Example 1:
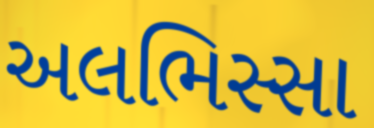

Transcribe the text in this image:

અલભિસ્સા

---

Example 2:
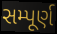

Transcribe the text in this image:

સમ્પૂર્ણ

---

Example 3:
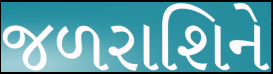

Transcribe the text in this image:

જળરાશિને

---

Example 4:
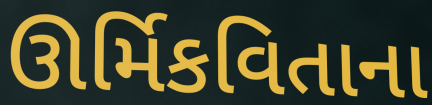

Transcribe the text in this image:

ઊર્મિકવિતાના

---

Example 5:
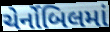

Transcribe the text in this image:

ચેર્નોબિલમાં